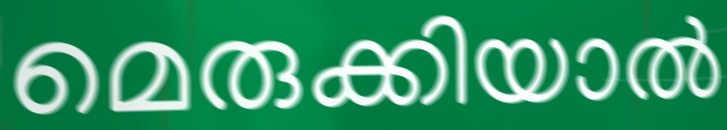
മെരുക്കിയാൽ